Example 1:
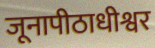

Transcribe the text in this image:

जूनापीठाधीश्वर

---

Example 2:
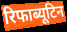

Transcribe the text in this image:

रिफाब्यूटिन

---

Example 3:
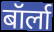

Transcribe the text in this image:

बॉर्ला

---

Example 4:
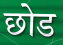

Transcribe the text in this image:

छोड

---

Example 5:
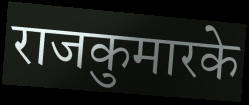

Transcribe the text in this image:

राजकुमारके